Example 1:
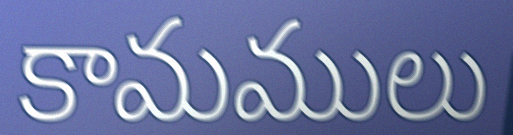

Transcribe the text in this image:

కామములు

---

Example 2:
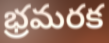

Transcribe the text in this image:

భ్రమరక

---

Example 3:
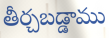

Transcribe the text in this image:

తీర్చబడ్డాము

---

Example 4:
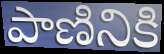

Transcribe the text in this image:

పాణినికి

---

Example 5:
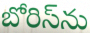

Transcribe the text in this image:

బోరిస్‌ను